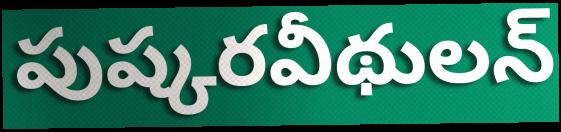
పుష్కరవీథులన్